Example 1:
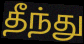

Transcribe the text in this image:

தீந்து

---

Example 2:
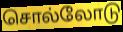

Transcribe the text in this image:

சொல்லோடு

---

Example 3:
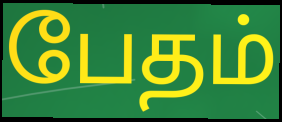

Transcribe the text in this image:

பேதம்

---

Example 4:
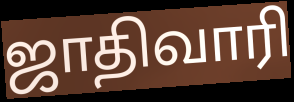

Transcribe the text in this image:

ஜாதிவாரி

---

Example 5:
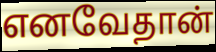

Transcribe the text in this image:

எனவேதான்